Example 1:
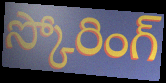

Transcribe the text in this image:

స్కోరింగ్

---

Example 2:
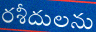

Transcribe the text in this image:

రశీదులను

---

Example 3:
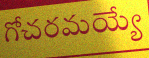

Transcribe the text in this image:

గోచరమయ్యే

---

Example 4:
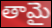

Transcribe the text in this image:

తామై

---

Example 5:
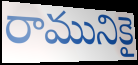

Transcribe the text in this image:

రామునికై